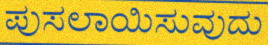
ಪುಸಲಾಯಿಸುವುದು